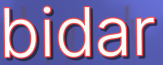
bidar